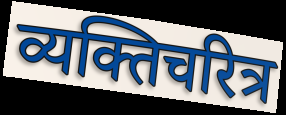
व्यक्तिचरित्र